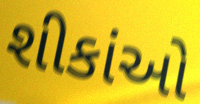
શીકાંઓ